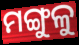
ମଙ୍ଗୁଳୁ